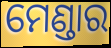
ମେଣ୍ଡାର